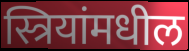
स्त्रियांमधील